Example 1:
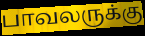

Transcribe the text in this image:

பாவலருக்கு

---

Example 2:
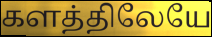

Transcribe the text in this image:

களத்திலேயே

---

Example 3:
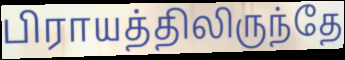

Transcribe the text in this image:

பிராயத்திலிருந்தே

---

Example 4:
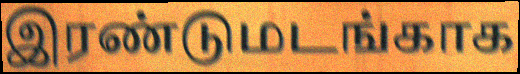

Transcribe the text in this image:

இரண்டுமடங்காக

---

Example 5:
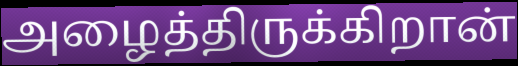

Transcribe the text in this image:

அழைத்திருக்கிறான்